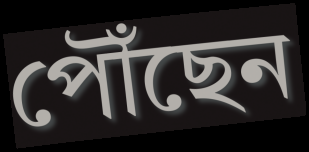
পৌঁছেন